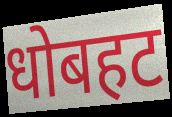
धोबहट